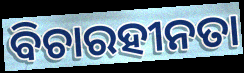
ବିଚାରହୀନତା